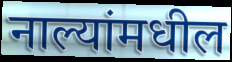
नाल्यांमधील